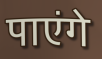
पाएंगे